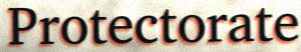
Protectorate